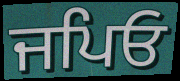
ਜਪਿਓ